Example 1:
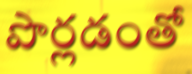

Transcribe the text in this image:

పొర్లడంతో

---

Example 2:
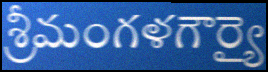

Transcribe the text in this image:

శ్రీమంగళగౌర్యై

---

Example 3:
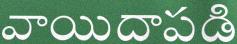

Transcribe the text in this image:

వాయిదాపడి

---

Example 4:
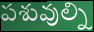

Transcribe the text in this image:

పశువుల్ని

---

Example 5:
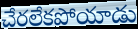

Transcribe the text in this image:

చేరలేకపోయాడు